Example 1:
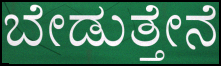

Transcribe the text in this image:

ಬೇಡುತ್ತೇನೆ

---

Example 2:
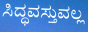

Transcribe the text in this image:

ಸಿದ್ಧವಸ್ತುವಲ್ಲ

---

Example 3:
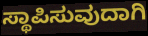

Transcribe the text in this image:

ಸ್ಥಾಪಿಸುವುದಾಗಿ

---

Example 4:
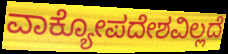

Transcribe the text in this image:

ವಾಕ್ಯೋಪದೇಶವಿಲ್ಲದೆ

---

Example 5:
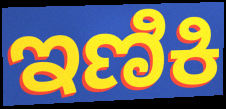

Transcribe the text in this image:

ಇಣಿಕಿ